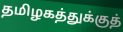
தமிழகத்துக்குத்